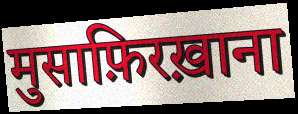
मुसाफ़िरख़ाना